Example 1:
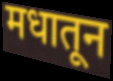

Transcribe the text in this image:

मधातून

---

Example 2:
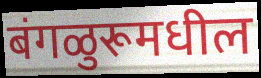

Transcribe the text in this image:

बंगळुरूमधील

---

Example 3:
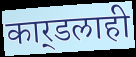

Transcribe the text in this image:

कार्डलाही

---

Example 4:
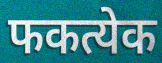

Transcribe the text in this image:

फकत्येक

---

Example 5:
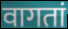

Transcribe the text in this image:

वागतां